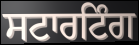
ਸਟਾਰਟਿੰਗ